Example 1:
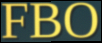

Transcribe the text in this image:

FBO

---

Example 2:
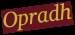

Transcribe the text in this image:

Opradh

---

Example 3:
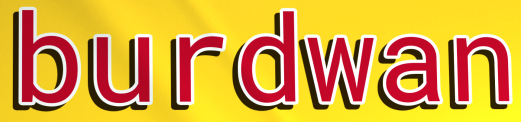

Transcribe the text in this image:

burdwan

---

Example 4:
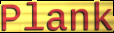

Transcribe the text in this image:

Plank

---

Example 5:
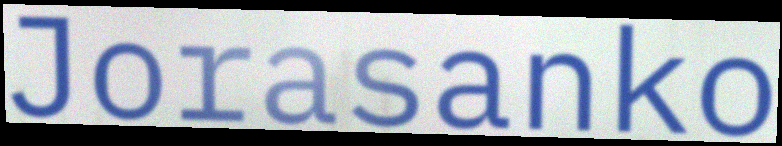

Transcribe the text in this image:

Jorasanko